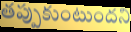
తప్పుకుంటుందని